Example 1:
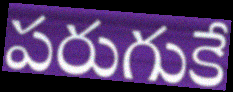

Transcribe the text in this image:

పరుగుకే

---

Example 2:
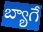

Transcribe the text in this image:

బ్యాగే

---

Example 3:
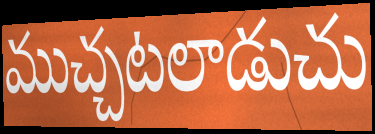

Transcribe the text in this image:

ముచ్చటలాడుచు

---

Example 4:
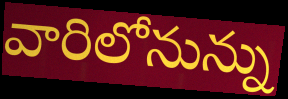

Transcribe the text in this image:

వారిలోనున్ను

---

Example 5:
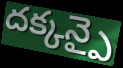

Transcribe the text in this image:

దక్కన్పై